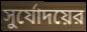
সুর্যোদয়ের